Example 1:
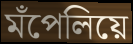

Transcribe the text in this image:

মঁপেলিয়ে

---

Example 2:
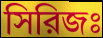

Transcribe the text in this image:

সিরিজঃ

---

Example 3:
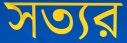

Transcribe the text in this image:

সত্যর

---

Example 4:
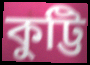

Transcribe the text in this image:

কুট্টি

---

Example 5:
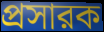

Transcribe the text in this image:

প্রসারক